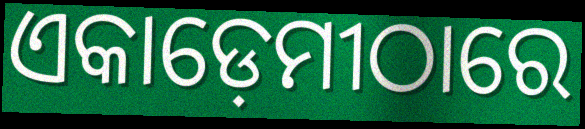
ଏକାଡ଼େମୀଠାରେ